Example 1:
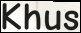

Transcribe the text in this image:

Khus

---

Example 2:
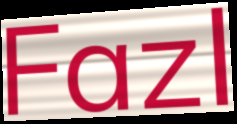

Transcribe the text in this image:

Fazl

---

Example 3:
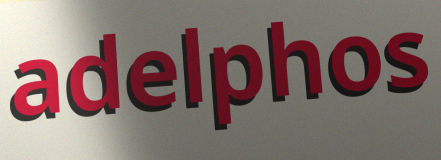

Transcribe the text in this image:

adelphos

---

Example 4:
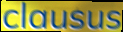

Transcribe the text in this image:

clausus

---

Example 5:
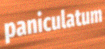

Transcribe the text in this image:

paniculatum